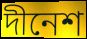
দীনেশ